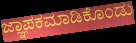
ಜ್ಞಾಪಕಮಾಡಿಕೊಂಡು